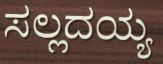
ಸಲ್ಲದಯ್ಯ